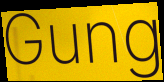
Gung